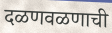
दळणवळणाची